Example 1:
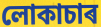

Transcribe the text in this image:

লোকাচাৰ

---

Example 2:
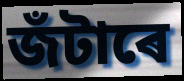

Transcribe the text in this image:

জঁটাৰে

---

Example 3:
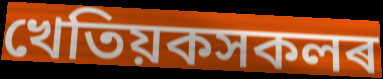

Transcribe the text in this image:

খেতিয়কসকলৰ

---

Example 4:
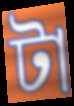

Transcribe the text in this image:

টা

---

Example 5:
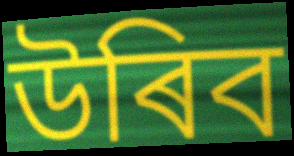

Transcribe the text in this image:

উৰিব